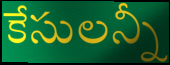
కేసులన్నీ